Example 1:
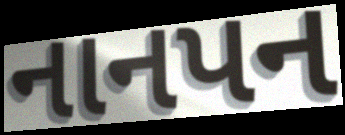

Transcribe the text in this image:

નાનપન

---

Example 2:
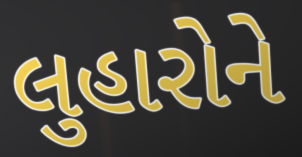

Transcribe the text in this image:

લુહારોને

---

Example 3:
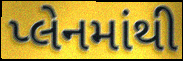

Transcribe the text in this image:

પ્લેનમાંથી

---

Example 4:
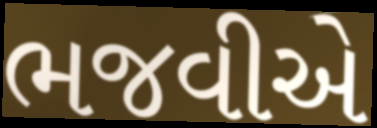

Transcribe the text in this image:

ભજવીએ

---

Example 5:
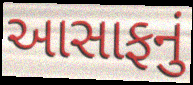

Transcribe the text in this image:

આસાફનું